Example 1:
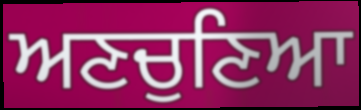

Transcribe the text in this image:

ਅਣਚੁਣਿਆ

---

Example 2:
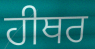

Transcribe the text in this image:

ਹੀਥਰ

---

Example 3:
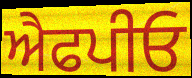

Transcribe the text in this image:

ਐਫਪੀਓ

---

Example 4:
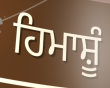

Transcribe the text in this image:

ਹਿਮਾਸ਼ੂੰ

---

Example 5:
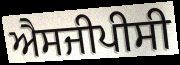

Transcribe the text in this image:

ਐਸਜੀਪੀਸੀ